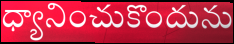
ధ్యానించుకొందును